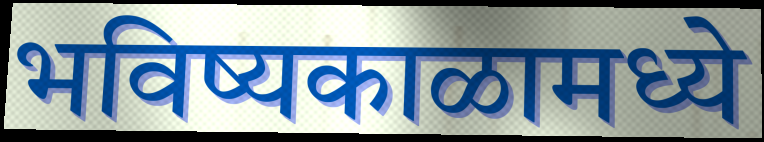
भविष्यकाळामध्ये